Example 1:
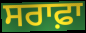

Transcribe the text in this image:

ਸਰਾਫ਼ਾ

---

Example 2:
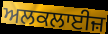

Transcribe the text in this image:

ਅਲਕਲਾਈਜ਼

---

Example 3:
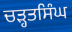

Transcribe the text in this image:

ਚੜ੍ਹਤਸਿੰਘ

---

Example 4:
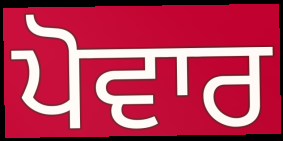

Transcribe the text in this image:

ਪੋਵਾਰ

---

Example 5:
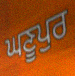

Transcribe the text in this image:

ਘਣੂਪੁਰ